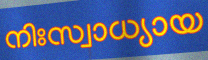
നിഃസ്വാധ്യായ